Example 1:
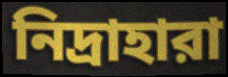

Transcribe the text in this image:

নিদ্রাহারা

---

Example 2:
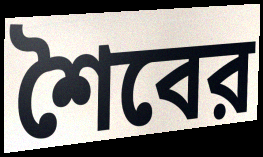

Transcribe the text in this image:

শৈবের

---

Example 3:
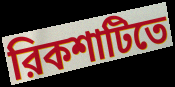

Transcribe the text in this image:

রিকশাটিতে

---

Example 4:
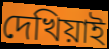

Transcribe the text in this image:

দেখিয়াই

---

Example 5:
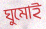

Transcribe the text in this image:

ঘুমোই